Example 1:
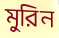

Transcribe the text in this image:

মুরিন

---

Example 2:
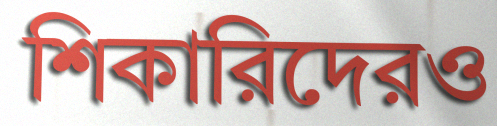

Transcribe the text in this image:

শিকারিদেরও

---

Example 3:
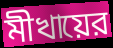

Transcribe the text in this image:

মীখায়ের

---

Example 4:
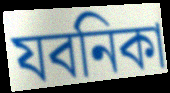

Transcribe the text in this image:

যবনিকা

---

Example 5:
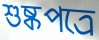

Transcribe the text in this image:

শুষ্কপত্রে